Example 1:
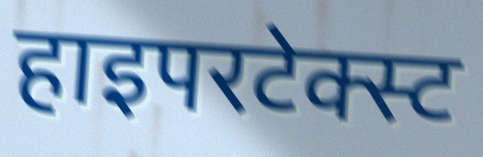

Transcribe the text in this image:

हाइपरटेक्स्ट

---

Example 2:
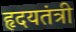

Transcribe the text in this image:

हृदयतंत्री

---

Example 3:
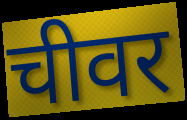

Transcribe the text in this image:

चीवर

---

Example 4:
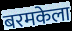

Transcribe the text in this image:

बरमकेला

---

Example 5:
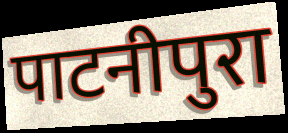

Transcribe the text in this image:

पाटनीपुरा